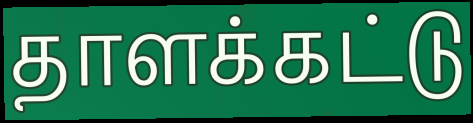
தாளக்கட்டு